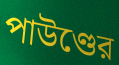
পাউণ্ডের